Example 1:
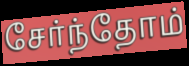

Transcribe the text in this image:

சேர்ந்தோம்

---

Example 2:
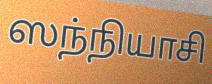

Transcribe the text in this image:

ஸந்நியாசி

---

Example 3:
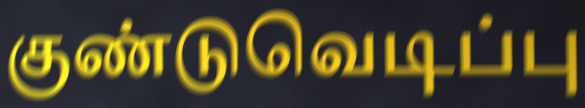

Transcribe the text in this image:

குண்டுவெடிப்பு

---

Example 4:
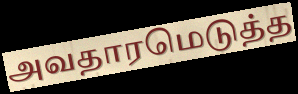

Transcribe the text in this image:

அவதாரமெடுத்த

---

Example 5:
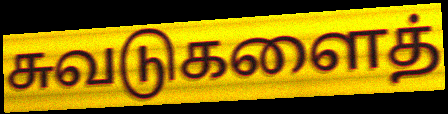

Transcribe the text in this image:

சுவடுகளைத்